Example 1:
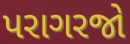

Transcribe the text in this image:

પરાગરજો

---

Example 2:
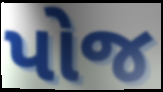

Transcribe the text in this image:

પોજ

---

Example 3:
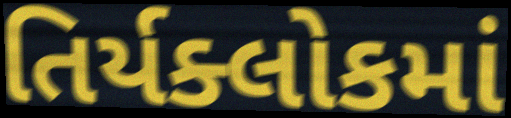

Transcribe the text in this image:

તિર્યક્લોકમાં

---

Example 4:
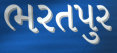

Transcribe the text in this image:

ભરતપુર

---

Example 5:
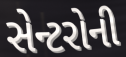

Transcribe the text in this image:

સેન્ટરોની